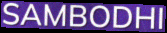
SAMBODHI